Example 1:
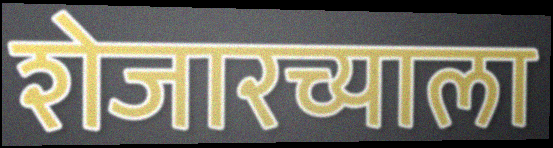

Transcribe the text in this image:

शेजारच्याला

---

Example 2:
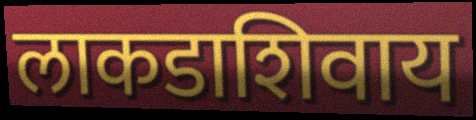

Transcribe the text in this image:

लाकडाशिवाय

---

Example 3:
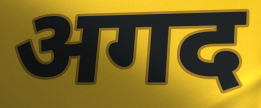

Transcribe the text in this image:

अगद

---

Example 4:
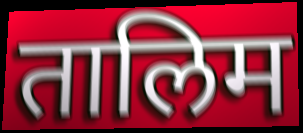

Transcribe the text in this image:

तालिम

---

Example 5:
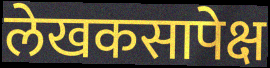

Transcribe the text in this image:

लेखकसापेक्ष